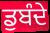
ਡੁਬੰਦੇ